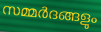
സമ്മർദങ്ങളും